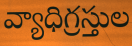
వ్యాధిగ్రస్తుల